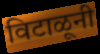
विटाळूनी